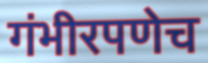
गंभीरपणेच